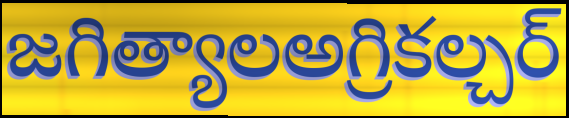
జగిత్యాలఅగ్రికల్చర్